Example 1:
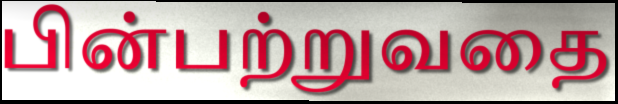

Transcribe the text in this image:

பின்பற்றுவதை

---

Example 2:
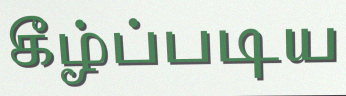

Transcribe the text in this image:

கீழ்ப்படிய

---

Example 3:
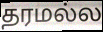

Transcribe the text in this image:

தரமல்ல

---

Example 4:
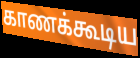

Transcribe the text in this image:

காணக்கூடிய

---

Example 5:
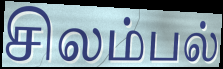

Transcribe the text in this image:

சிலம்பல்